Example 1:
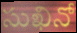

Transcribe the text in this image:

సుఖినో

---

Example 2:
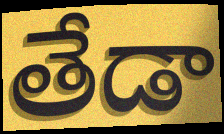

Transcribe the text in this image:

తేడా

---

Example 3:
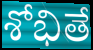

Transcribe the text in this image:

శోభితే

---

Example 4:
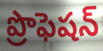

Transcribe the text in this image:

ప్రొఫెషన్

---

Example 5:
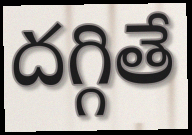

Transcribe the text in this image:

దగ్గితే